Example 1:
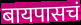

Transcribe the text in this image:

बायपासचं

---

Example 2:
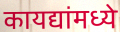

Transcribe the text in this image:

कायद्यांमध्ये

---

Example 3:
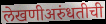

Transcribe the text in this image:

लेखणीअरुंधतीची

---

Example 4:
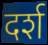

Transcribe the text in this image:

दर्श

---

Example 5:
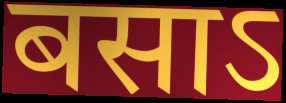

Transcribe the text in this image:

बसाऽ